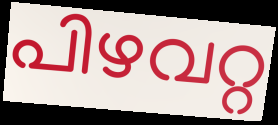
പിഴവറ്റ